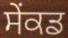
ਸੇਂਕਡ